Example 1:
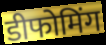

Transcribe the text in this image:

डीफोमिंग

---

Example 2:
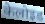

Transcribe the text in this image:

केलोइड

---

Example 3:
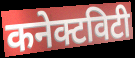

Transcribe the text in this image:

कनेक्टविटी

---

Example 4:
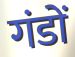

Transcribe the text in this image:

गंडों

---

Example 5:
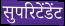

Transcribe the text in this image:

सुपरिटेंडेंट